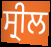
ਸ੍ਰੀਲ